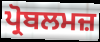
ਪ੍ਰੋਬਲਮਜ਼